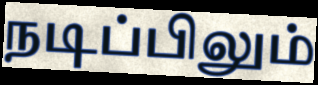
நடிப்பிலும்